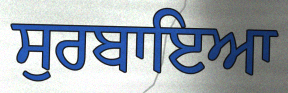
ਸੁਰਬਾਇਆ